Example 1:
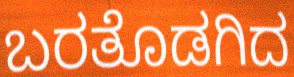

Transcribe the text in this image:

ಬರತೊಡಗಿದ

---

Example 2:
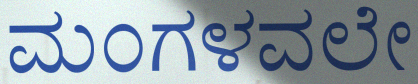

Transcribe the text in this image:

ಮಂಗಳವಲೇ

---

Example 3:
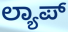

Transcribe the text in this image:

ಲ್ಯಾಪ್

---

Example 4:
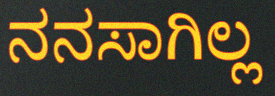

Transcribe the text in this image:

ನನಸಾಗಿಲ್ಲ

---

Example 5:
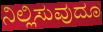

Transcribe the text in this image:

ನಿಲ್ಲಿಸುವುದೂ